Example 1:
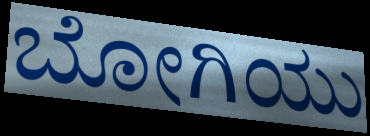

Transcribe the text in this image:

ಬೋಗಿಯು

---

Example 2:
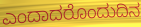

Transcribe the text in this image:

ಎಂದಾದರೊಂದುದಿನ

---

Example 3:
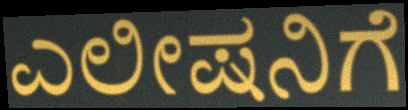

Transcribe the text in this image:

ಎಲೀಷನಿಗೆ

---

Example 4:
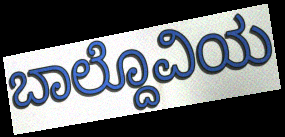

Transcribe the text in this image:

ಬಾಲ್ದೊವಿಯ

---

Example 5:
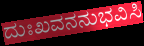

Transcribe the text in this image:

ದುಃಖವನನುಭವಿಸಿ